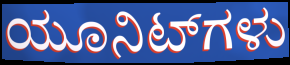
ಯೂನಿಟ್‌ಗಳು